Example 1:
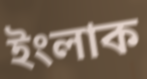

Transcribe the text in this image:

ইংলাক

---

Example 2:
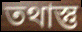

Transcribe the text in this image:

তথাস্তু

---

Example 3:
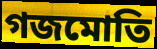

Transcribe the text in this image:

গজমোতি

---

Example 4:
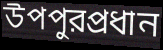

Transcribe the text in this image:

উপপুরপ্রধান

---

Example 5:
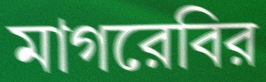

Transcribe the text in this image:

মাগরেবির